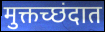
मुक्तच्छंदात